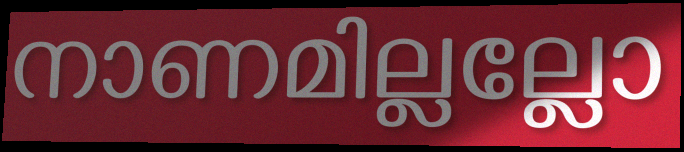
നാണമില്ലല്ലോ